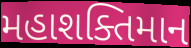
મહાશક્તિમાન